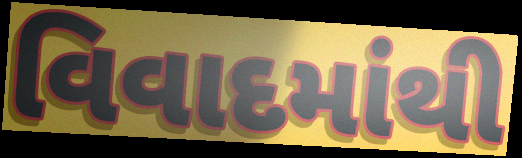
વિવાદમાંથી